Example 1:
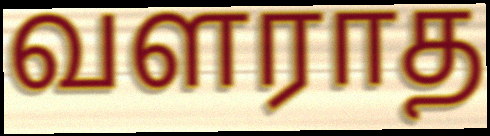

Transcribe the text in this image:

வளராத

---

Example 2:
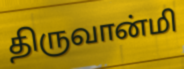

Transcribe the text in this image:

திருவான்மி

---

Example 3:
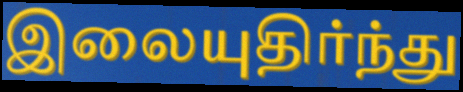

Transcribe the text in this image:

இலையுதிர்ந்து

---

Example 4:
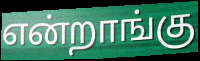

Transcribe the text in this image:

என்றாங்கு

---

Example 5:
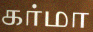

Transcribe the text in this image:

கர்மா